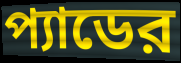
প্যাডের